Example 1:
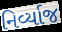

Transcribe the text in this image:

નિર્વ્યાજ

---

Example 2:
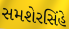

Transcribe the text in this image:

સમશેરસિંહે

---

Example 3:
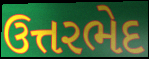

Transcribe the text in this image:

ઉત્તરભેદ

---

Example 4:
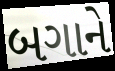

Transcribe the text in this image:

બગાને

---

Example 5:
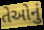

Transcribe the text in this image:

તેઓનું